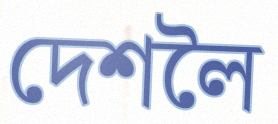
দেশলৈ